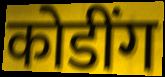
कोडींग